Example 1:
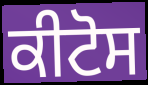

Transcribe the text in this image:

ਕੀਟੋਸ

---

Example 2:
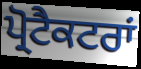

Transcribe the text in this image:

ਪ੍ਰੋਟੈਕਟਰਾਂ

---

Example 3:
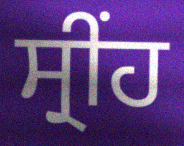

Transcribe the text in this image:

ਸ੍ਰੀਂਹ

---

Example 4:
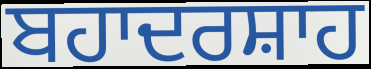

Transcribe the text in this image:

ਬਹਾਦਰਸ਼ਾਹ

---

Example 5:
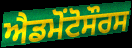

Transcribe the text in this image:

ਐਡਮੋਂਟੋਸੌਰਸ